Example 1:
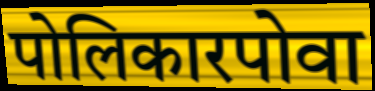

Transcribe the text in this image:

पोलिकारपोवा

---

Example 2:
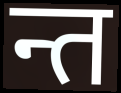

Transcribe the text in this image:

न्त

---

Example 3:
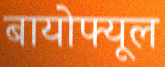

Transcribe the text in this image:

बायोफ्यूल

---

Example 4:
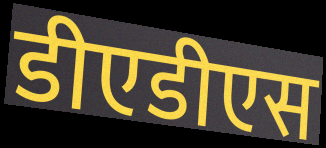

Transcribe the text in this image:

डीएडीएस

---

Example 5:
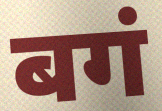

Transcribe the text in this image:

बगं